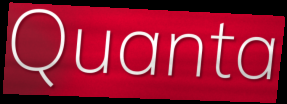
Quanta